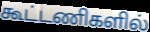
கூட்டணிகளில்